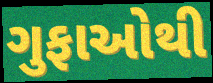
ગુફાઓથી